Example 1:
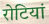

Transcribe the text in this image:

रोटियां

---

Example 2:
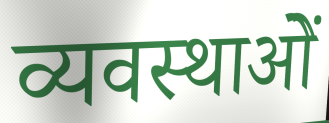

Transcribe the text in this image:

व्यवस्थाओें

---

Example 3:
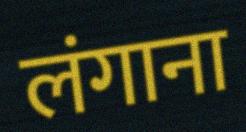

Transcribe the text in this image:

लंगाना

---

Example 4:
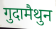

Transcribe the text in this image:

गुदामैथुन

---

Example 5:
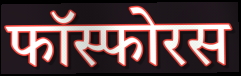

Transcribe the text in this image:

फॉस्फोरस